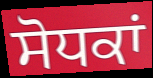
ਸੋਧਕਾਂ